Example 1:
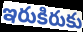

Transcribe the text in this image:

ఇరుకిరుకు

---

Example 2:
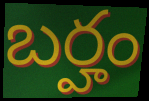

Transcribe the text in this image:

బర్హం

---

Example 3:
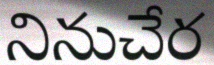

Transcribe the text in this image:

నినుచేర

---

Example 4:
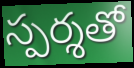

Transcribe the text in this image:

స్పర్శతో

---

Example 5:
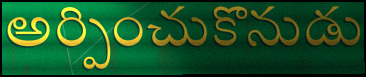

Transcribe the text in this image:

అర్పించుకొనుడు